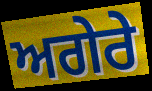
ਅਗੇਰੇ